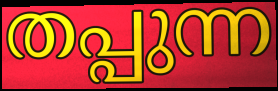
തപ്പുന്ന